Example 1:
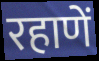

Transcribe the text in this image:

रहाणें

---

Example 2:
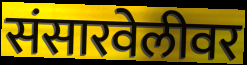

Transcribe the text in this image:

संसारवेलीवर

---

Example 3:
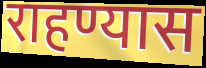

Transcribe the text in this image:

राहण्यास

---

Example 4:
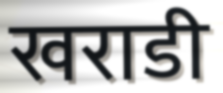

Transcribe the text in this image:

खराडी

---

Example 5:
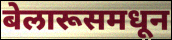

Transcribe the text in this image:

बेलारूसमधून